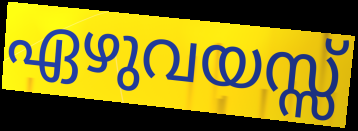
ഏഴുവയസ്സ്